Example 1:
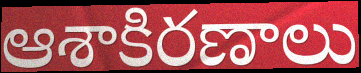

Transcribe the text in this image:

ఆశాకిరణాలు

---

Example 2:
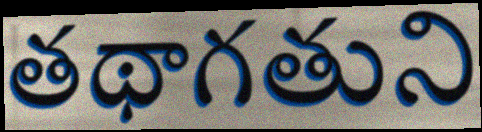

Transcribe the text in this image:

తథాగతుని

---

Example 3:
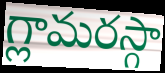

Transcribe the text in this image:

గ్లామరస్గా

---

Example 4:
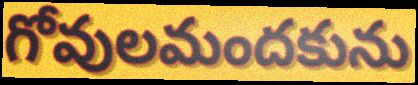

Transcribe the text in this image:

గోవులమందకును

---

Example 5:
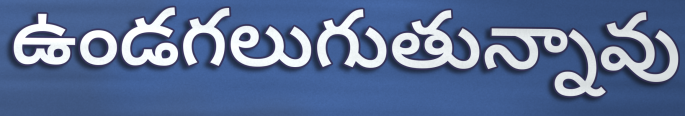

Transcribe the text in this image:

ఉండగలుగుతున్నావు